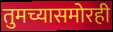
तुमच्यासमोरही